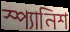
স্প্যানিশ